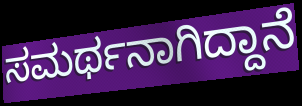
ಸಮರ್ಥನಾಗಿದ್ದಾನೆ